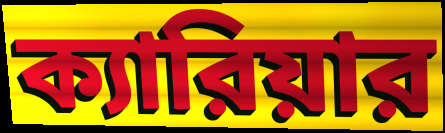
ক্যারিয়ার